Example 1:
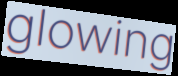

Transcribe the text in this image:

glowing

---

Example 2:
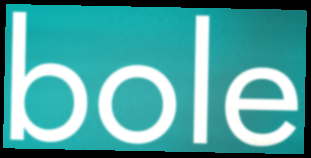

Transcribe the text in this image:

bole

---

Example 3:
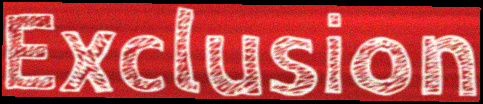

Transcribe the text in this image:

Exclusion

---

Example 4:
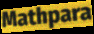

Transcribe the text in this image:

Mathpara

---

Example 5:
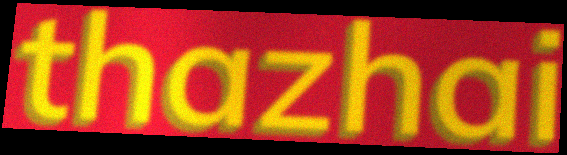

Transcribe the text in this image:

thazhai